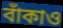
বাঁকাও